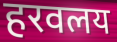
हरवलय